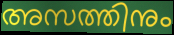
അസത്തിനും